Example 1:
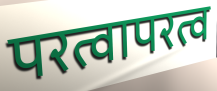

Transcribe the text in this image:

परत्वापरत्व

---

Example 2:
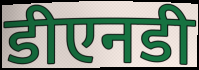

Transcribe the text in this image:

डीएनडी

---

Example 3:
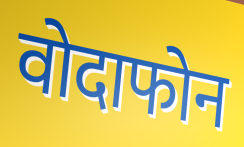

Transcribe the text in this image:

वोदाफोन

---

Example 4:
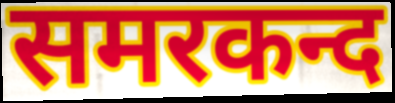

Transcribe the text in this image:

समरकन्द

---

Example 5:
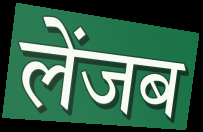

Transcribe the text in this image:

लेंजब